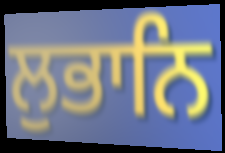
ਲੁਭਾਨਿ